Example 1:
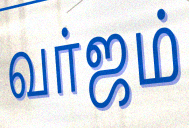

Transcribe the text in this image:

வர்ஜம்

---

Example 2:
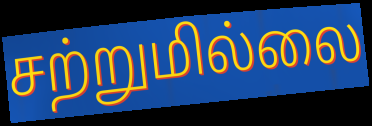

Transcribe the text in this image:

சற்றுமில்லை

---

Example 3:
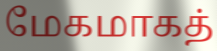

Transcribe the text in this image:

மேகமாகத்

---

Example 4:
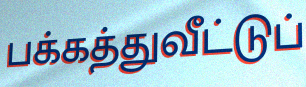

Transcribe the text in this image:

பக்கத்துவீட்டுப்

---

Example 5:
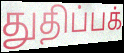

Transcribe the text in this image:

துதிப்பக்